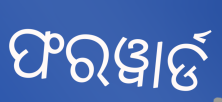
ଫରୱାର୍ଡ